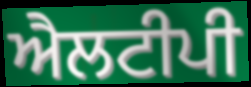
ਐਲਟੀਪੀ